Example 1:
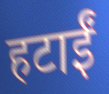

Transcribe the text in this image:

हटाईं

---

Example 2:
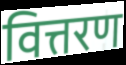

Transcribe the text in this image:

वित्तरण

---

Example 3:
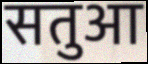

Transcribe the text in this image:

सतुआ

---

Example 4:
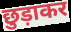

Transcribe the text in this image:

छुड़ाकर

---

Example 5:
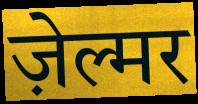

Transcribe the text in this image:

ज़ेल्मर